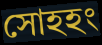
সোহহং